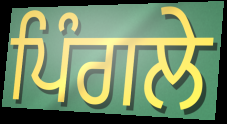
ਪਿੰਗਲੇ